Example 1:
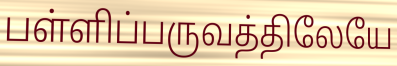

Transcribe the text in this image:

பள்ளிப்பருவத்திலேயே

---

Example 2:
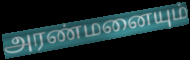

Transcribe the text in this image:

அரண்மனையும்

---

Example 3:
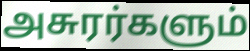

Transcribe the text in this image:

அசுரர்களும்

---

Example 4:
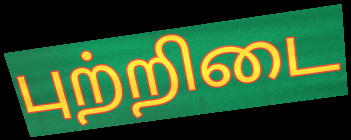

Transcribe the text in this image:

புற்றிடை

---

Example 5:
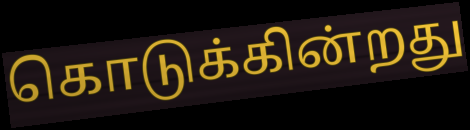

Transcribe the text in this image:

கொடுக்கின்றது